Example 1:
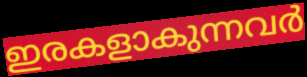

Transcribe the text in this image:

ഇരകളാകുന്നവർ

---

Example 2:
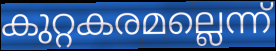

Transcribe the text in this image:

കുറ്റകരമല്ലെന്ന്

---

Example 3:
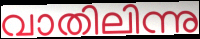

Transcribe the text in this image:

വാതിലിന്നു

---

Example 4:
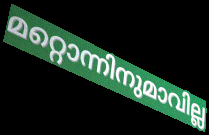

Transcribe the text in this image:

മറ്റൊന്നിനുമാവില്ല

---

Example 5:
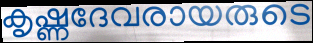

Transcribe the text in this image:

കൃഷ്ണദേവരായരുടെ